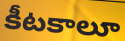
కీటకాలూ